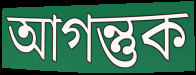
আগন্তুক